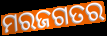
ମରଜଗତର